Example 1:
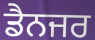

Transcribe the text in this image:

ਡੈਨਜਰ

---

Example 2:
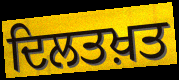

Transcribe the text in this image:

ਦਿਲਤਖ਼ਤ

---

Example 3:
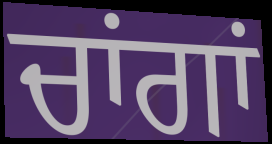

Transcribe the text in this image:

ਚਾਂਗਾਂ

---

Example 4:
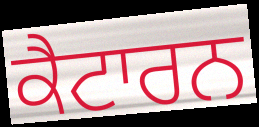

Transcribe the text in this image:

ਕੈਟਾਰਨ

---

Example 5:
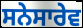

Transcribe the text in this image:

ਸਨੇਸਾਰੇਵ